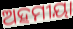
ଅହମୀୟା